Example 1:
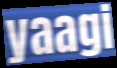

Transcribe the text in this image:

yaagi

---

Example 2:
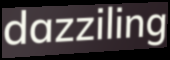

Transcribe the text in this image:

dazziling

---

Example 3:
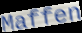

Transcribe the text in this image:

Maffen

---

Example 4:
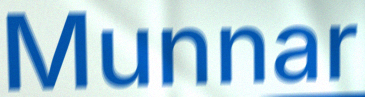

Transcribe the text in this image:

Munnar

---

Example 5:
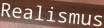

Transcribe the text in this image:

Realismus